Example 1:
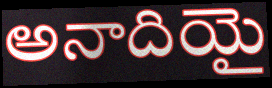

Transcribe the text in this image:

అనాదియై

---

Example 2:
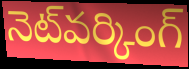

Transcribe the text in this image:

నెట్‌వర్కింగ్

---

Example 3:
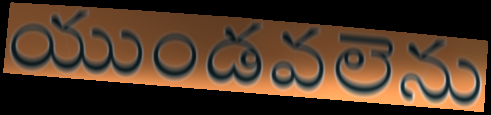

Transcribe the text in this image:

యుండవలెను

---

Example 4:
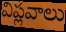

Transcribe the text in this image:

విప్లవాలు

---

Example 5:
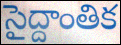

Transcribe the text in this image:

సైద్దాంతిక